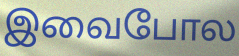
இவைபோல